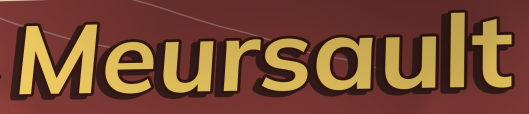
Meursault